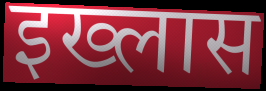
इख्लास